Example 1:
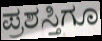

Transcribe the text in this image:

ಪ್ರಶಸ್ತಿಗೂ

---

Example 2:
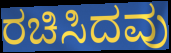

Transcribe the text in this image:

ರಚಿಸಿದವು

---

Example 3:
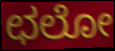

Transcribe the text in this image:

ಛಲೋ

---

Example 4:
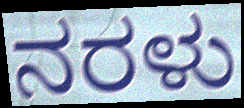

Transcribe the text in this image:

ನರಳು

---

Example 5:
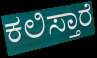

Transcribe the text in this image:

ಕಲಿಸ್ತಾರೆ